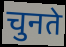
चुनते